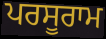
ਪਰਸੂਰਾਮ